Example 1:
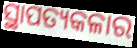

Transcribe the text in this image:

ସ୍ଥାପତ୍ୟକଳାର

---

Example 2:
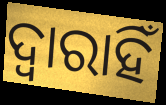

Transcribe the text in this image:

ଦ୍ୱାରାହିଁ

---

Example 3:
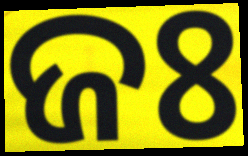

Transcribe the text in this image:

ଜଃ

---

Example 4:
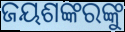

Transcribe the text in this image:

ଜୟଶଙ୍କରଙ୍କୁ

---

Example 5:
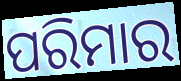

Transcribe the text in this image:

ପରିମାର